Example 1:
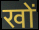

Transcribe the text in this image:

खों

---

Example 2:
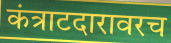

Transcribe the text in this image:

कंत्राटदारावरच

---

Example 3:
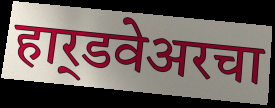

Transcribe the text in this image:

हार्डवेअरचा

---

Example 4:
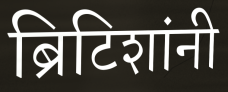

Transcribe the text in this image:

ब्रिटिशांनी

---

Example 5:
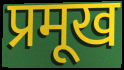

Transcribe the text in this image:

प्रमूख